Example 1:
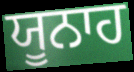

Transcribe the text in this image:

ਯੂਨਾਹ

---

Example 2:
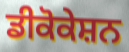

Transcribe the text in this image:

ਡੀਕੋਕੇਸ਼ਨ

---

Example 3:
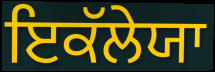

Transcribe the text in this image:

ਇਕੱਲੇਯਾ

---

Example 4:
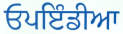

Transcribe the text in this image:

ਓਪਇੰਡੀਆ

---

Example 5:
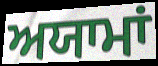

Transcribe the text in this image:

ਅਯਾਮਾਂ